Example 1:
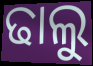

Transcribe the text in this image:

ଢାଲୁ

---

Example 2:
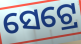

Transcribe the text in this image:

ସେଟ୍ରେ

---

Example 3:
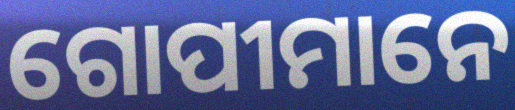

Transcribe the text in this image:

ଗୋପୀମାନେ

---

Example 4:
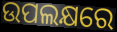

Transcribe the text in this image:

ଉପଲକ୍ଷରେ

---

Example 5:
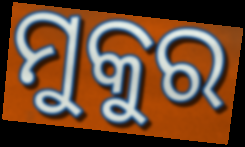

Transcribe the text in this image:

ମୁକୁର